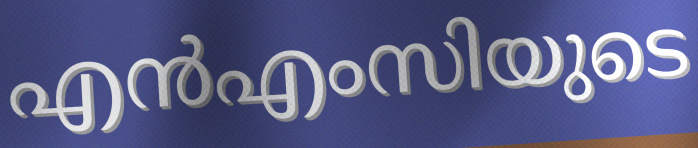
എൻഎംസിയുടെ